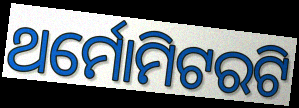
ଥର୍ମୋମିଟରଟି